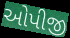
ઓપીજી